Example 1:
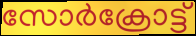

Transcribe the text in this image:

സോർക്രോട്ട്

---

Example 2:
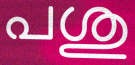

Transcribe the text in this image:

പശു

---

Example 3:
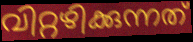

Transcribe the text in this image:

വിറ്റഴിക്കുന്നത്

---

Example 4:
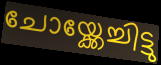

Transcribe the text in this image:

ചോയ്ക്കേച്ചിട്ടു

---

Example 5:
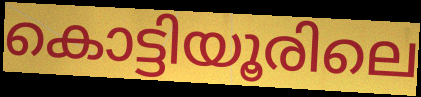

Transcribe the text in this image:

കൊട്ടിയൂരിലെ